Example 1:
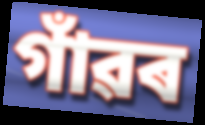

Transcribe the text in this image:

গাঁৱৰ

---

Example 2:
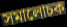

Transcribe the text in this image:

সমালোচক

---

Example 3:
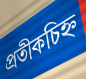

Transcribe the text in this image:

প্ৰতীকচিহ্ন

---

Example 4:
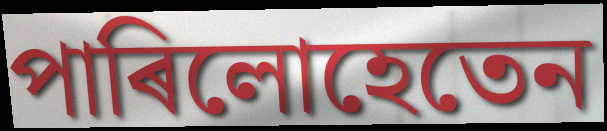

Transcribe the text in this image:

পাৰিলোহেতেন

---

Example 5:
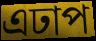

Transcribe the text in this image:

এঢাপ